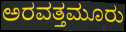
ಅರವತ್ತಮೂರು